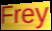
Frey